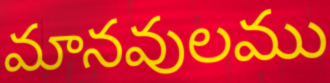
మానవులము